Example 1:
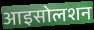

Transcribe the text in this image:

आइसोलशन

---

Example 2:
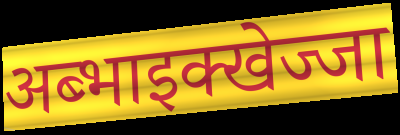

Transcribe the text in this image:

अब्भाइक्खेज्जा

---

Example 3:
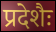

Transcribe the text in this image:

प्रदेशैः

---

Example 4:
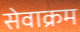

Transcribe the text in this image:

सेवाक्रम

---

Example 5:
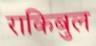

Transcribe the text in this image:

राकिबुल